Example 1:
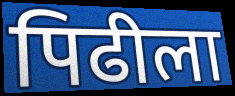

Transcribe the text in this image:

पिढीला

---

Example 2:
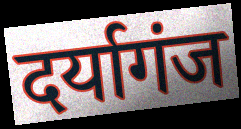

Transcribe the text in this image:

दर्यागंज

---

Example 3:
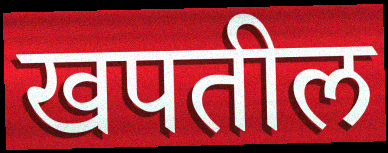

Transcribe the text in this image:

खपतील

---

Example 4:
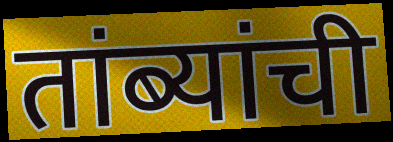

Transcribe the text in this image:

तांब्यांची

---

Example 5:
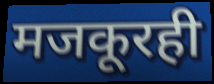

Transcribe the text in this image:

मजकूरही